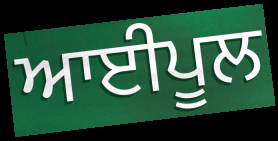
ਆਈਪੂਲ